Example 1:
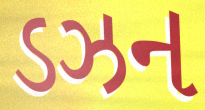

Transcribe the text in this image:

ડઝન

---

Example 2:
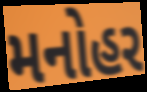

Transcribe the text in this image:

મનોહર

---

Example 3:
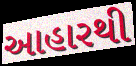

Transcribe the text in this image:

આહારથી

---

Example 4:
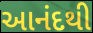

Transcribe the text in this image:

આનંદથી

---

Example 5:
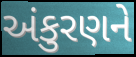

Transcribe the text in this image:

અંકુરણને